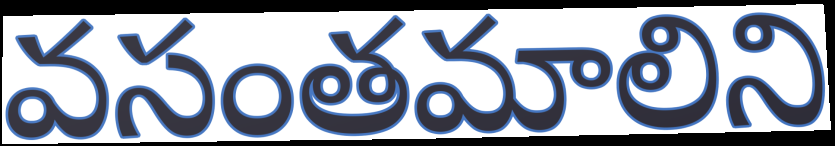
వసంతమాలిని